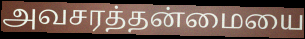
அவசரத்தன்மையை